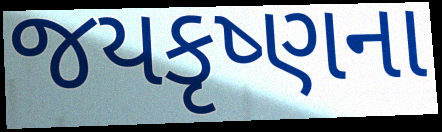
જયકૃષ્ણના